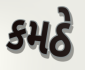
કમઠે